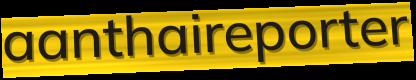
aanthaireporter